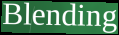
Blending